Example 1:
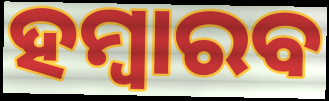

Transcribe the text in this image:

ହମ୍ବାରବ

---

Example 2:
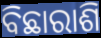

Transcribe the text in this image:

ବିଛାରାଶି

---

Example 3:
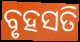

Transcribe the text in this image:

ବୃହସତି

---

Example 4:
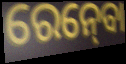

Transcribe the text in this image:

ରେନ୍‍ବୋ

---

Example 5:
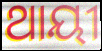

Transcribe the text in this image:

ଥାୟୀ